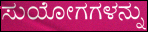
ಸುಯೋಗಗಳನ್ನು